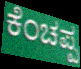
ಕೆಂಚಪ್ಪ